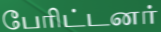
பேரிட்டனர்